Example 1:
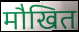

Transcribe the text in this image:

मौखित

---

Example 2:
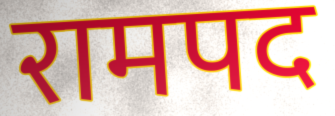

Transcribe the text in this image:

रामपद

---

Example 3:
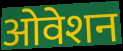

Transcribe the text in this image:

ओवेशन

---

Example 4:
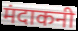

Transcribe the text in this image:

मंदाकनी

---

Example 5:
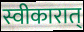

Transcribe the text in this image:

स्वीकारात्